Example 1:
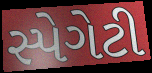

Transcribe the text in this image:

સ્પેગેટી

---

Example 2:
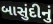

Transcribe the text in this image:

બાસુંદીનું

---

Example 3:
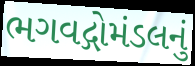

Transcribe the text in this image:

ભગવદ્ગોમંડલનું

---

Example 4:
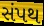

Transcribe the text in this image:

સંપથ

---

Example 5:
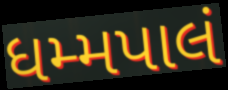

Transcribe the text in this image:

ધમ્મપાલં